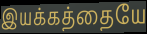
இயக்கத்தையே